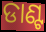
ଡାଣ୍ଟ